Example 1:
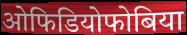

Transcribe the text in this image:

ओफिडियोफोबिया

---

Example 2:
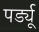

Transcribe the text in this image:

पर्ड्यू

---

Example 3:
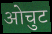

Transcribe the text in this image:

ओचुट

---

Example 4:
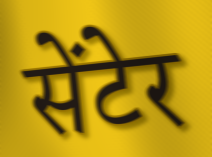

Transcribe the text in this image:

सेंटेर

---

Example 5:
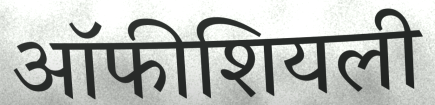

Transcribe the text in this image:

ऑफीशियली